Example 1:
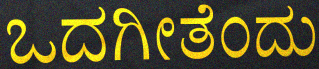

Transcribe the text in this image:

ಒದಗೀತೆಂದು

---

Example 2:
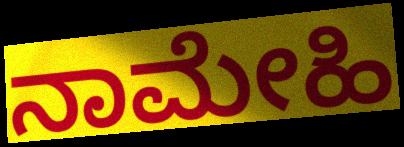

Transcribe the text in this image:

ನಾಮೇಹಿ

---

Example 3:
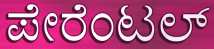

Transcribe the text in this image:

ಪೇರೆಂಟಲ್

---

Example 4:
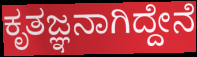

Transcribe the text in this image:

ಕೃತಜ್ಞನಾಗಿದ್ದೇನೆ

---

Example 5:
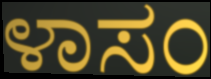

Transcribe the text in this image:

ಳಾಸಂ